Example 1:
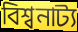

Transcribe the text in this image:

বিশ্বনাট্য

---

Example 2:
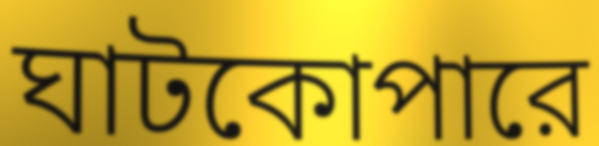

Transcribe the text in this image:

ঘাটকোপারে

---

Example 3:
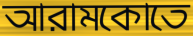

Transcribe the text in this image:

আরামকোতে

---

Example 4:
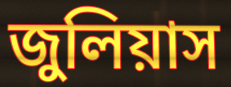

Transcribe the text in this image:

জুলিয়াস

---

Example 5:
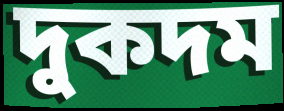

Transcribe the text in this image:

দুকদম